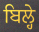
ਬਿਲ੍ਹੇ